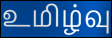
உமிழ்வு